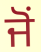
ਜੋਂ